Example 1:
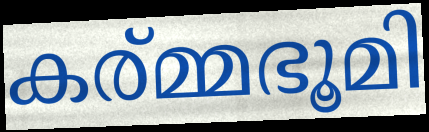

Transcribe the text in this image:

കര്മ്മഭൂമി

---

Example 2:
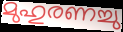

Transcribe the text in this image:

മുഹുരണച്ചു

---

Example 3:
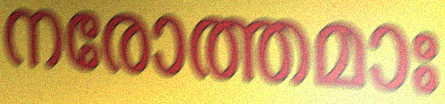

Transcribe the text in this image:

നരോത്തമാഃ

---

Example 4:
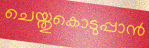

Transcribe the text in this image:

ചെയ്തുകൊടുപ്പാൻ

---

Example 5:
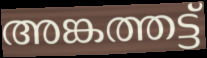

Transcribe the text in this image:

അങ്കത്തട്ട്